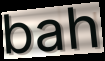
bah